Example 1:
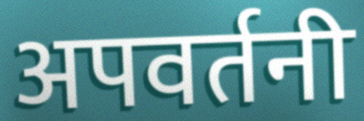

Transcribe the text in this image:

अपवर्तनी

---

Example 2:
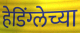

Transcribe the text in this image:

हेडिंग्लेच्या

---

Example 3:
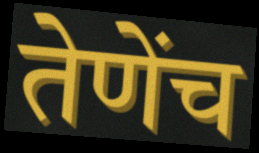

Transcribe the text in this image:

तेणेंच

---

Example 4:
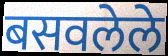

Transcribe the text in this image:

बसवलेले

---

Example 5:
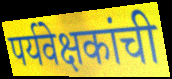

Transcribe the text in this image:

पर्यवेक्षकांची